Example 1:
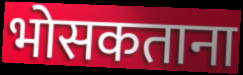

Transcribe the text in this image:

भोसकताना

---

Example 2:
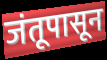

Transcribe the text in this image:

जंतूपासून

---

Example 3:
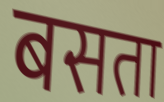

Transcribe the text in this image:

बसता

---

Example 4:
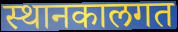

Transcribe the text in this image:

स्थानकालगत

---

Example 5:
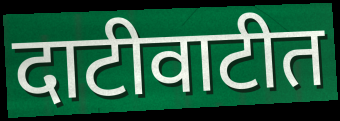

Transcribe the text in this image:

दाटीवाटीत